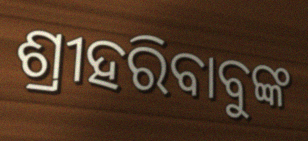
ଶ୍ରୀହରିବାବୁଙ୍କ